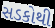
સડકોથી